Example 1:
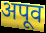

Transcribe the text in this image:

अपूव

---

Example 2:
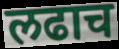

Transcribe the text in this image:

लढाच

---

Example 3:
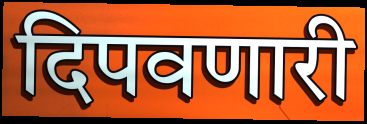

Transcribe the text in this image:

दिपवणारी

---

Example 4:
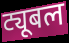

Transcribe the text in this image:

ट्यूबल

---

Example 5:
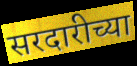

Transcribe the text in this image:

सरदारीच्या